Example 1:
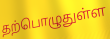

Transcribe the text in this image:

தற்பொழுதுள்ள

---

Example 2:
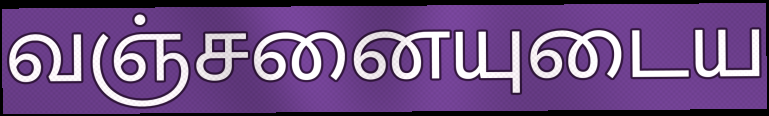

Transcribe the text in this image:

வஞ்சனையுடைய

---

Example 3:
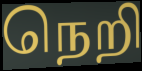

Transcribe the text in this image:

நெறி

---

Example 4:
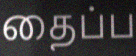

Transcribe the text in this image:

தைப்ப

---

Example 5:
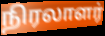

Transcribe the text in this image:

நிரலாளர்